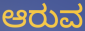
ಆರುವ